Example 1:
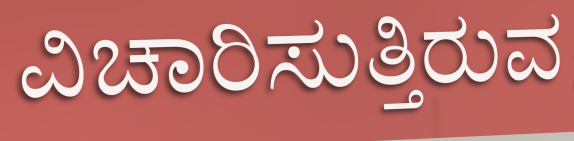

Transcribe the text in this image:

ವಿಚಾರಿಸುತ್ತಿರುವ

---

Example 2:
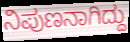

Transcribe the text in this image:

ನಿಪುಣನಾಗಿದ್ದು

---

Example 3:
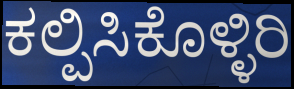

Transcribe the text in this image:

ಕಲ್ಪಿಸಿಕೊಳ್ಳಿರಿ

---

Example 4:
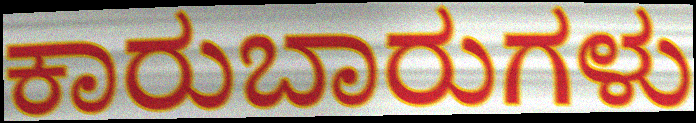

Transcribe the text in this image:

ಕಾರುಬಾರುಗಳು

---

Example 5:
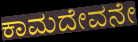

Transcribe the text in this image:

ಕಾಮದೇವನೇ